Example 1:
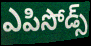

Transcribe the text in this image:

ఎపిసోడ్స్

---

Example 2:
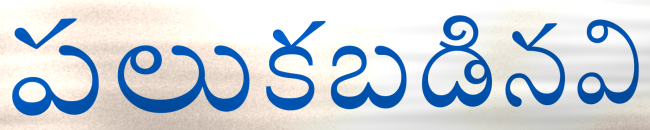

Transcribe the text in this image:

పలుకబడినవి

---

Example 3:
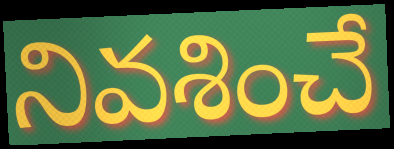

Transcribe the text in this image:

నివశించే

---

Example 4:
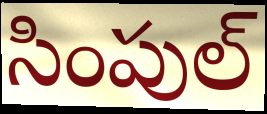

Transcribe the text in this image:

సింపుల్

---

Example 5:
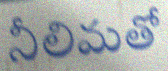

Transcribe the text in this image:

నీలిమతో